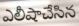
ఎలీషాచేసిన